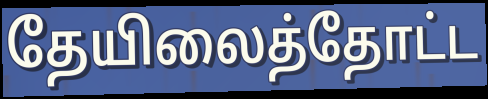
தேயிலைத்தோட்ட